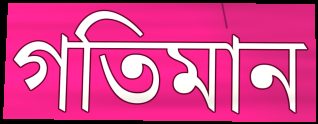
গতিমান